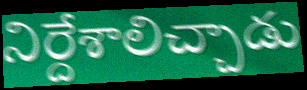
నిర్దేశాలిచ్చాడు